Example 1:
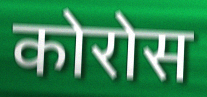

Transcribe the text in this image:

कोरोस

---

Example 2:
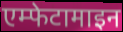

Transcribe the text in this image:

एम्फेटामाइन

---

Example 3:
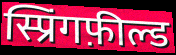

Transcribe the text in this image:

स्प्रिंगफ़ील्ड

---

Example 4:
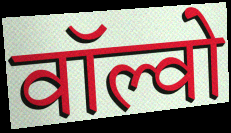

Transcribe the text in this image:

वॉल्वो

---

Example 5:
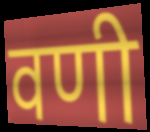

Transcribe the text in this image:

वणी